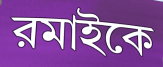
রমাইকে